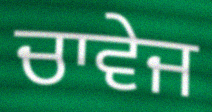
ਚਾਵੇਜ